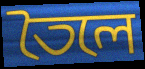
তৈলে